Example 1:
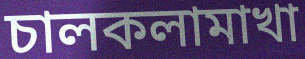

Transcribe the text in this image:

চালকলামাখা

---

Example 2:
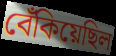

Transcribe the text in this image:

বেঁকিয়েছিল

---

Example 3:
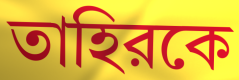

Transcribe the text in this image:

তাহিরকে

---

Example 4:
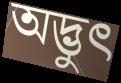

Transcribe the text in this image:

অদ্ভুৎ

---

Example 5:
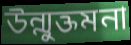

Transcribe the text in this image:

উন্মুক্তমনা